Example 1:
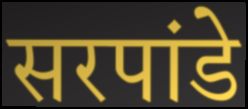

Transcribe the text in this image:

सरपांडे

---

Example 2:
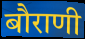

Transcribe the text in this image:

बौराणी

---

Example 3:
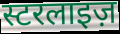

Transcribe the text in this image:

स्टरलाइज़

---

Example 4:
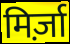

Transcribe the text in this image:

मिर्ज़ा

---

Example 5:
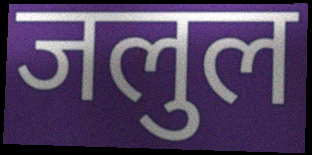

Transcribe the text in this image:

जलुल